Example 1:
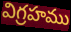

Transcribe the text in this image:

విగ్రహము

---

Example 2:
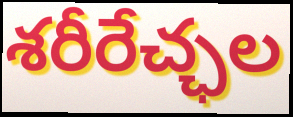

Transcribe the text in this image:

శరీరేచ్ఛల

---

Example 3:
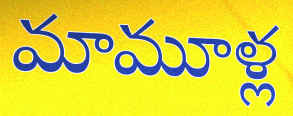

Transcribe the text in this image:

మామూళ్ల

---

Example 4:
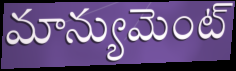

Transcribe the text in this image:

మాన్యుమెంట్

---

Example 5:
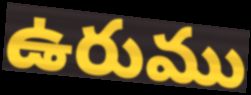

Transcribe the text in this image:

ఉరుము